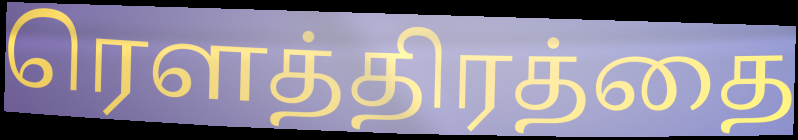
ரௌத்திரத்தை